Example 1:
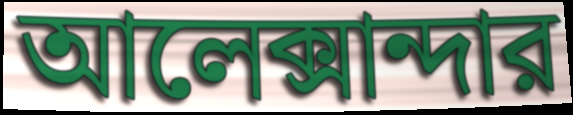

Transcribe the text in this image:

আলেক্সান্দার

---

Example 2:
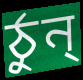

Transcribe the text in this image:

ঠুন্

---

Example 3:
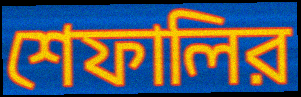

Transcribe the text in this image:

শেফালির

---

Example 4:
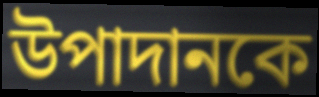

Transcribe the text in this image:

উপাদানকে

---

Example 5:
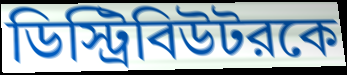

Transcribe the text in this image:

ডিস্ট্রিবিউটরকে